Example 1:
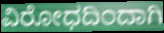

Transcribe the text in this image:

ವಿರೋಧದಿಂದಾಗಿ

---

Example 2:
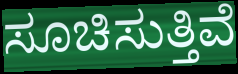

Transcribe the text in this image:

ಸೂಚಿಸುತ್ತಿವೆ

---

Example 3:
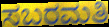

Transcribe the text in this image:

ಸಬರಮತಿ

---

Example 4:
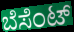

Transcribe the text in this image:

ಬೆಸೆಂಟ್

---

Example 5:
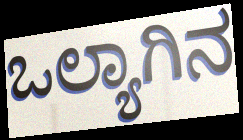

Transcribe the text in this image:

ಒಲ್ಯಾಗಿನ